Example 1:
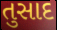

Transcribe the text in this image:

તુસાદ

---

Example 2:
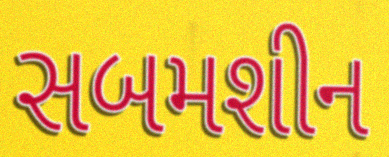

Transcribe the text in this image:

સબમશીન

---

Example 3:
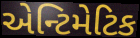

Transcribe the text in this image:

એન્ટિમેટિક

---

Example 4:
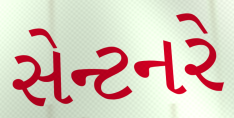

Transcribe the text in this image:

સેન્ટનરે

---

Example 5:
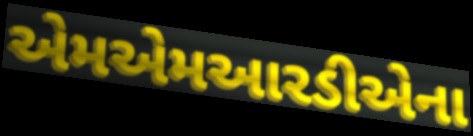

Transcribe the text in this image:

એમએમઆરડીએના